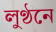
লুণ্ঠনে